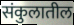
संकुलातील